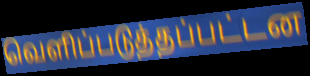
வெளிப்படுத்தப்பட்டன